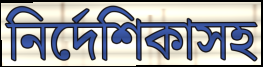
নির্দেশিকাসহ